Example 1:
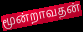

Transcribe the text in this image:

மூன்றாவதன்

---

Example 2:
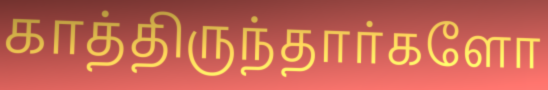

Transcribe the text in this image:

காத்திருந்தார்களோ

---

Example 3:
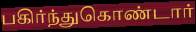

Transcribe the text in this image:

பகிர்ந்துகொண்டார்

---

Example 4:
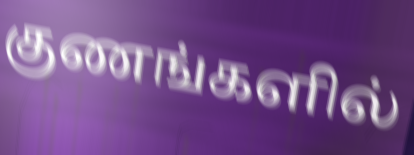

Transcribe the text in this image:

குணங்களில்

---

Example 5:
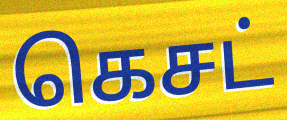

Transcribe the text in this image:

கெசட்